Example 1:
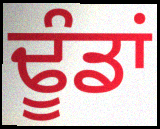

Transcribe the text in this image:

ਢੂੰਡਾਂ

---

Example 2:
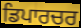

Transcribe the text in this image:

ਡਿਪਾਰਚਰ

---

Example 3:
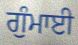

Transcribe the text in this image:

ਗੁੰਮਾਈ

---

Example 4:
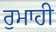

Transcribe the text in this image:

ਰੁਮਾਹੀ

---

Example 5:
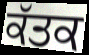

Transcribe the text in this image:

ਕੱਤਕ